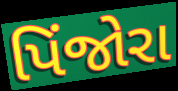
પિંજોરા